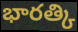
భారత్కి